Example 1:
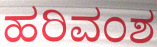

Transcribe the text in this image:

ಹರಿವಂಶ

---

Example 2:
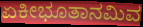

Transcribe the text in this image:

ಏಕೀಭೂತಾನಮಿವ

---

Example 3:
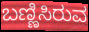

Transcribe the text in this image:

ಬಣ್ಣಿಸಿರುವ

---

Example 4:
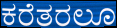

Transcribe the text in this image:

ಕರೆತರಲೂ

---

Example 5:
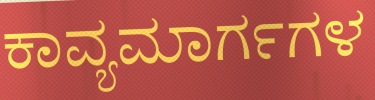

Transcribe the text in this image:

ಕಾವ್ಯಮಾರ್ಗಗಳ